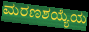
ಮರಣಶಯ್ಯೆಯ